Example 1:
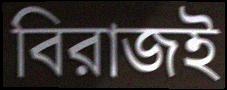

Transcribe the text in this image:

বিরাজই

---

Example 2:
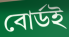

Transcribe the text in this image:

বোর্ডই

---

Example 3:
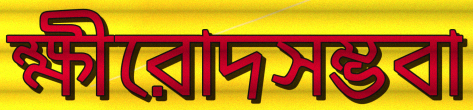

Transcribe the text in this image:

ক্ষীরোদসম্ভবা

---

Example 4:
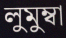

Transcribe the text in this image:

লুমুম্বা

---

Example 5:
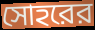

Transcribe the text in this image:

সোহরের